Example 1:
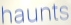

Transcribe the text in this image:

haunts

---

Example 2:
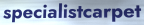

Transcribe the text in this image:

specialistcarpet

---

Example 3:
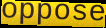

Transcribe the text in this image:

oppose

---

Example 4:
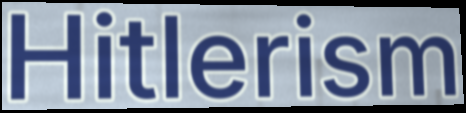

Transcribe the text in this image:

Hitlerism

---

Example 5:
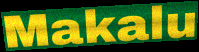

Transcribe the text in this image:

Makalu